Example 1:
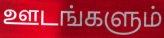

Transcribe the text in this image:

ஊடங்களும்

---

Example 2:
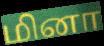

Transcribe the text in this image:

மினா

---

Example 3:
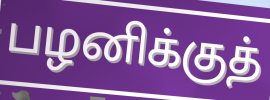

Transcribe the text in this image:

பழனிக்குத்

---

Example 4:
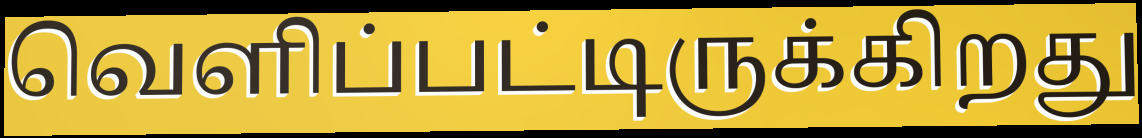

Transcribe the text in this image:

வெளிப்பட்டிருக்கிறது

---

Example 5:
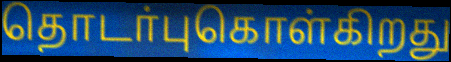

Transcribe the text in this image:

தொடர்புகொள்கிறது